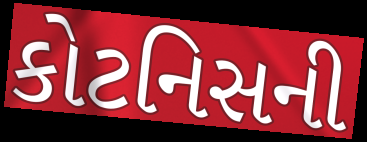
કોટનિસની